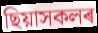
ছিয়াসকলৰ